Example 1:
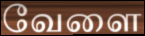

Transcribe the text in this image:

வேளை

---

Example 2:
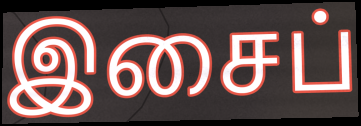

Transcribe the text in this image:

இசைப்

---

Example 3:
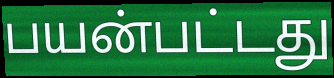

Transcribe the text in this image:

பயன்பட்டது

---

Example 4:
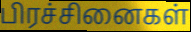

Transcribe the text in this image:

பிரச்சினைகள்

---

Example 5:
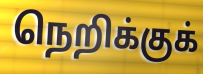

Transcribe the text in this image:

நெறிக்குக்